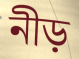
নীড়